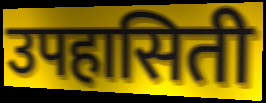
उपहासिती